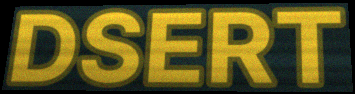
DSERT